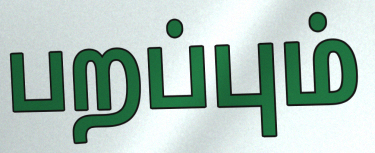
பறப்பும்